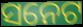
ସନେଟ